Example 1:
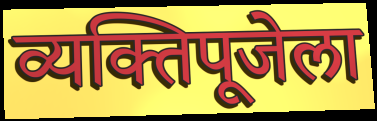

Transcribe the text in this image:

व्यक्तिपूजेला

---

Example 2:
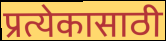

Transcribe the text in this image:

प्रत्येकासाठी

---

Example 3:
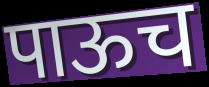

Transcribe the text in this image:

पाऊच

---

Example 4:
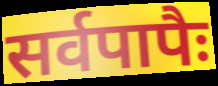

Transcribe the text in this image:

सर्वपापैः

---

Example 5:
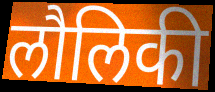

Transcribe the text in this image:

लौलिकी